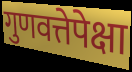
गुणवत्तेपेक्षा